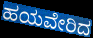
ಹಯವೇರಿದ